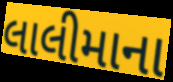
લાલીમાના